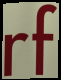
rf